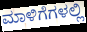
ಮಾಳಿಗೆಗಳಲ್ಲಿ